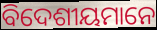
ବିଦେଶୀୟମାନେ